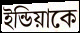
ইন্ডিয়াকে